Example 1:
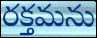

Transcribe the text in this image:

రక్తమను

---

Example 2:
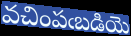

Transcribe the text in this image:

వచింపఁబడియె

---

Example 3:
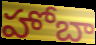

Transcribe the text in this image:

హోబా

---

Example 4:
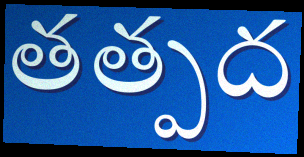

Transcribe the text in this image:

తత్పద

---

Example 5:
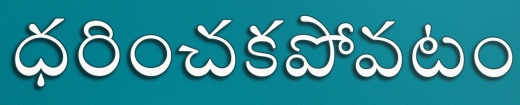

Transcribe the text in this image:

ధరించకపోవటం